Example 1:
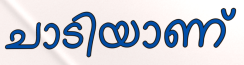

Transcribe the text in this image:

ചാടിയാണ്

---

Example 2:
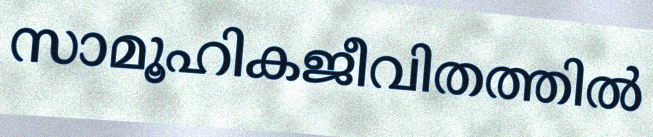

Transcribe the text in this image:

സാമൂഹികജീവിതത്തിൽ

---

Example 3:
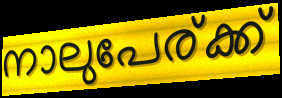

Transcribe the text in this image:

നാലുപേര്ക്ക്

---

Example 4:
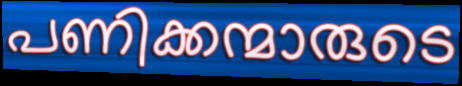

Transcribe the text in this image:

പണിക്കന്മാരുടെ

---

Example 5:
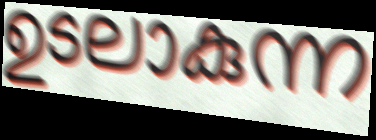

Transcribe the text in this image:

ഉടലാകുന്ന